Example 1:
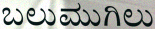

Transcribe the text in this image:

ಬಲುಮುಗಿಲು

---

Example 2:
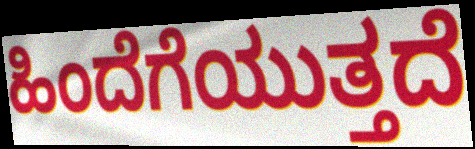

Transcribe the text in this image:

ಹಿಂದೆಗೆಯುತ್ತದೆ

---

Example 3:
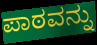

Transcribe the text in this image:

ಪಾಠವನ್ನು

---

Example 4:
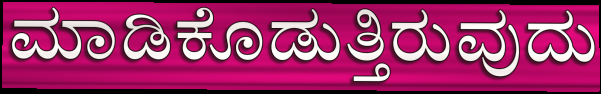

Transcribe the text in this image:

ಮಾಡಿಕೊಡುತ್ತಿರುವುದು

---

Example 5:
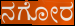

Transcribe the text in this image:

ನಗೋರ